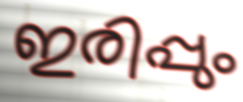
ഇരിപ്പും